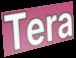
Tera